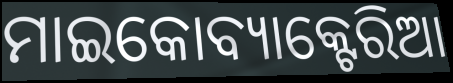
ମାଇକୋବ୍ୟାକ୍ଟେରିଆ